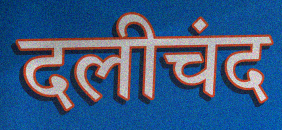
दलीचंद